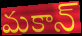
మకాన్